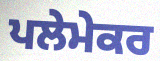
ਪਲੇਮੇਕਰ